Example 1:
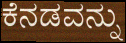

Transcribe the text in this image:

ಕೆನಡವನ್ನು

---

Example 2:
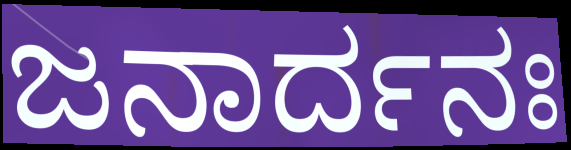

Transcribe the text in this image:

ಜನಾರ್ದನಃ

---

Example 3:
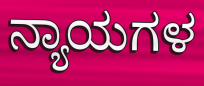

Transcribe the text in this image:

ನ್ಯಾಯಗಳ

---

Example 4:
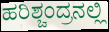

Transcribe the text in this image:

ಹರಿಶ್ಚಂದ್ರನಲ್ಲಿ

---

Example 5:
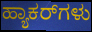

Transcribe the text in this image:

ಹ್ಯಾಕರ್‌ಗಳು